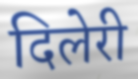
दिलेरी